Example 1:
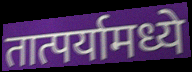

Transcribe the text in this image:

तात्पर्यामध्ये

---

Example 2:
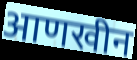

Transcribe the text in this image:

आणखीन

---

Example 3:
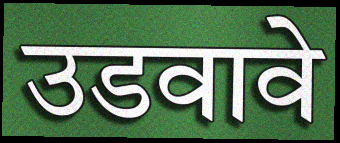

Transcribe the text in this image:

उडवावे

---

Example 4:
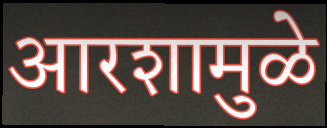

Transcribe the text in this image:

आरशामुळे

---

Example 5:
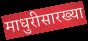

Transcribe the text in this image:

माधुरीसारख्या